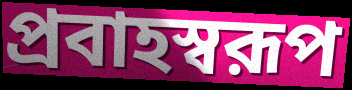
প্রবাহস্বরূপ